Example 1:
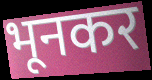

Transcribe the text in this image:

भूनकर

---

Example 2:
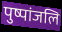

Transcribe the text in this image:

पुष्पांजलि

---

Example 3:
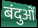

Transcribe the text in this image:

बंदुओं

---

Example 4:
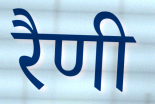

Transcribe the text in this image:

रैणी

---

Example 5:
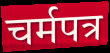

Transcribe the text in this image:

चर्मपत्र